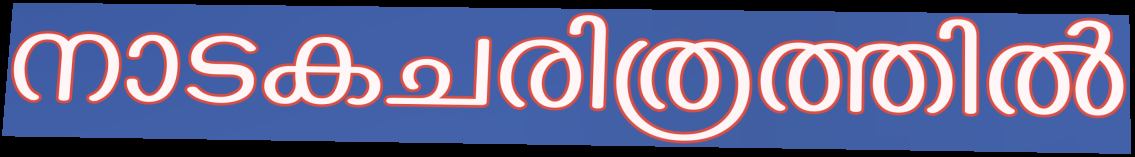
നാടകചരിത്രത്തിൽ